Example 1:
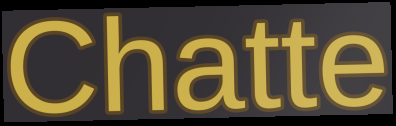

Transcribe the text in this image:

Chatte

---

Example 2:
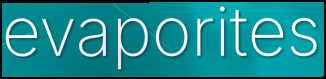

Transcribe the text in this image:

evaporites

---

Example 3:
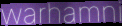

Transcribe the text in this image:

warhamni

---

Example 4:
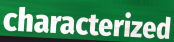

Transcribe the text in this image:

characterized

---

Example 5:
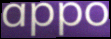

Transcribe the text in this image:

appo